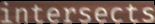
intersects